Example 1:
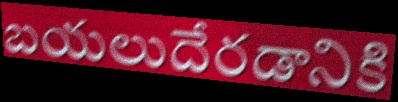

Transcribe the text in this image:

బయలుదేరడానికి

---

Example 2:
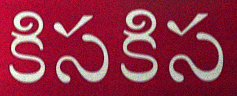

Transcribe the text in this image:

కిసకిస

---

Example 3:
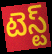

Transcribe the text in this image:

టెస్ట్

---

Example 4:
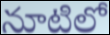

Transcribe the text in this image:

నూటిలో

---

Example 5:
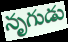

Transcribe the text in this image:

నృగుడు